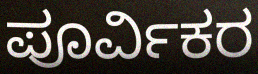
ಪೂರ್ವಿಕರ